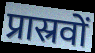
प्रास्रवों